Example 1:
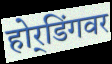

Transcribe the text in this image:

होर्डिंगवर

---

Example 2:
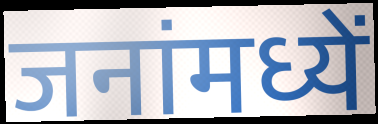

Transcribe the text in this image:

जनांमध्यें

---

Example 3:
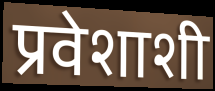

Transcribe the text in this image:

प्रवेशाशी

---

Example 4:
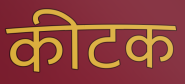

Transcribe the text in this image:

कीटक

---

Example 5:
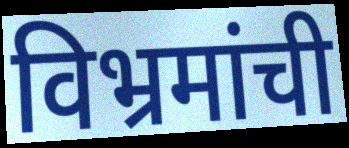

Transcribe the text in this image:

विभ्रमांची